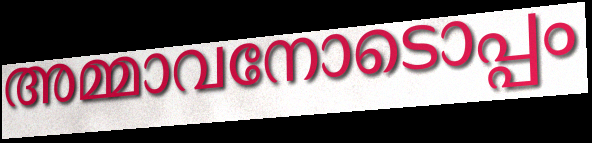
അമ്മാവനോടൊപ്പം